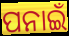
ପନାଇଁ